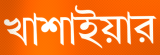
খাশাইয়ার